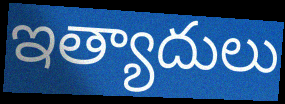
ఇత్యాదులు